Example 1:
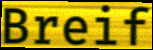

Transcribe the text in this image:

Breif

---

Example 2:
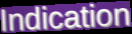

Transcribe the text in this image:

Indication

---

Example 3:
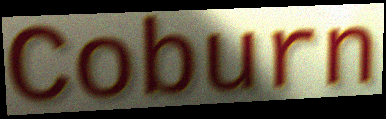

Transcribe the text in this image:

Coburn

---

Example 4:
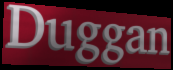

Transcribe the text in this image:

Duggan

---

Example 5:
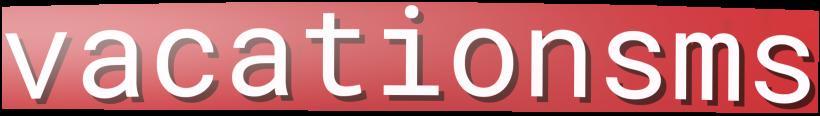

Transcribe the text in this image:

vacationsms